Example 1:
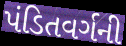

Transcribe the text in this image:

પંડિતવર્ગની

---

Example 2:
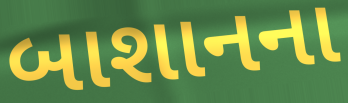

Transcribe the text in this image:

બાશાનના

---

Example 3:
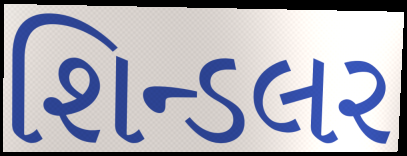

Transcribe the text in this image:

શિન્ડલર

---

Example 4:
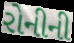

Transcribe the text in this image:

રોનીની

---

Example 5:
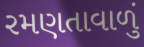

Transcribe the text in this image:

રમણતાવાળું